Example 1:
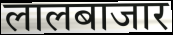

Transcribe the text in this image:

लालबाजार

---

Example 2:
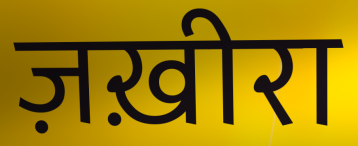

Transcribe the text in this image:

ज़ख़ीरा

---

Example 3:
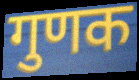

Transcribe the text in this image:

गुणक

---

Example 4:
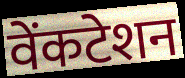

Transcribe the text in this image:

वेंकटेशन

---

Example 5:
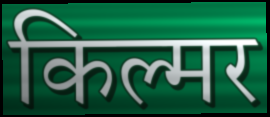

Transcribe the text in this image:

किल्मर